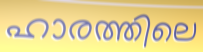
ഹാരത്തിലെ